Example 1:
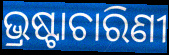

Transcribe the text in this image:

ଭ୍ରଷ୍ଟାଚାରିଣୀ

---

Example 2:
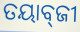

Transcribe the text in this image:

ତୟାବ୍‌ଜୀ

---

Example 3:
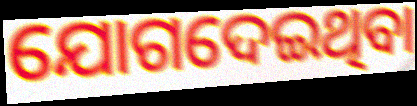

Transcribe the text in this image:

ଯୋଗଦେଇଥିବା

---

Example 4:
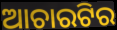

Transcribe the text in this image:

ଆଚାରଟିର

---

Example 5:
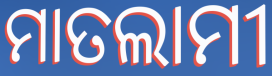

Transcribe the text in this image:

ମାତଲାମୀ